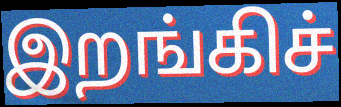
இறங்கிச்